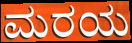
ಮರಯ